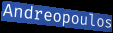
Andreopoulos